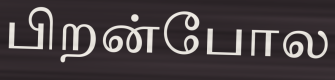
பிறன்போல